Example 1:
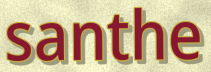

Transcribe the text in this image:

santhe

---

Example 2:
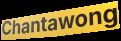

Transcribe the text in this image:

Chantawong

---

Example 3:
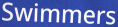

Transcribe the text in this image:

Swimmers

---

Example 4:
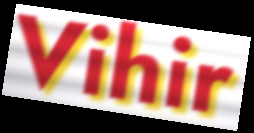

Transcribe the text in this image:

Vihir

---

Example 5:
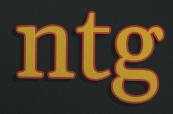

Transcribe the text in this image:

ntg